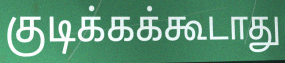
குடிக்கக்கூடாது